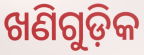
ଖଣିଗୁଡ଼ିକ